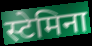
स्टेमिना